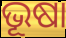
ଭୂଷା